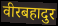
वीरबहादुर